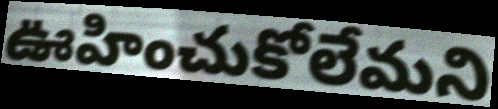
ఊహించుకోలేమని